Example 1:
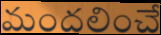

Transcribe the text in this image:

మందలించే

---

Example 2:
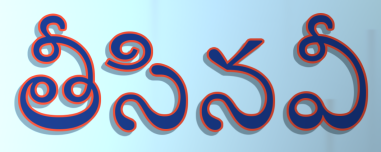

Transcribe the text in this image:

తీసినవీ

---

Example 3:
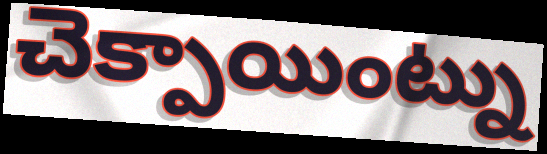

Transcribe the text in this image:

చెక్పాయింట్ను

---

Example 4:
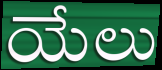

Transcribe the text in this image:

యేలు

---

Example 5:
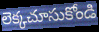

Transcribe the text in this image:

లెక్కచూసుకోండి